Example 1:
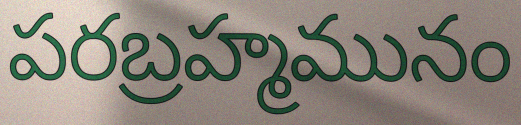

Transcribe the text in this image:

పరబ్రహ్మమునం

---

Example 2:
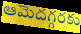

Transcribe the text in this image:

ఆమెదగ్గరకు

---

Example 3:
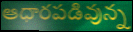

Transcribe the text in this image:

ఆధారపడివున్న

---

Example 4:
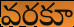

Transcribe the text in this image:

వరకూ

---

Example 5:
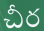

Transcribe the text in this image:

చీర